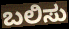
ಬಲಿಸು